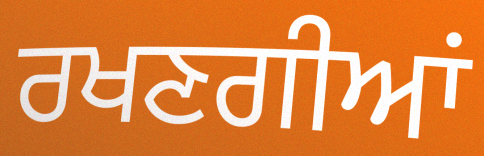
ਰਖਣਗੀਆਂ